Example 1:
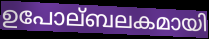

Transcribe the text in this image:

ഉപോല്ബലകമായി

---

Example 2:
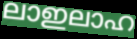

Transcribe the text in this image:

ലാഇലാഹ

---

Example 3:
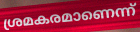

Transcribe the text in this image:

ശ്രമകരമാണെന്ന്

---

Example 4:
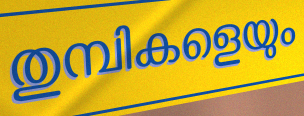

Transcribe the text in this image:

തുമ്പികളെയും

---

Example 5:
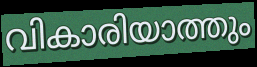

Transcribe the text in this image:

വികാരിയാത്തും